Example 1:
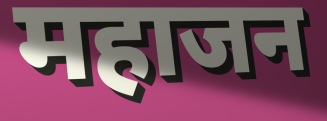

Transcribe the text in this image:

महाजन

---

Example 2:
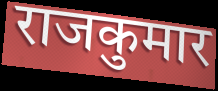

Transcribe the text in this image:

राजकुमार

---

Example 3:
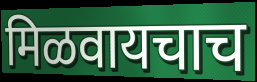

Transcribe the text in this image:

मिळवायचाच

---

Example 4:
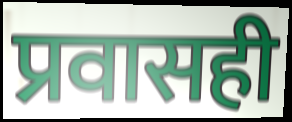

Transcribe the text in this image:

प्रवासही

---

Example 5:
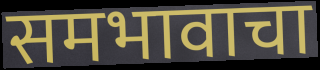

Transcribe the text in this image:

समभावाचा